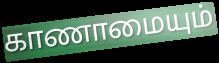
காணாமையும்